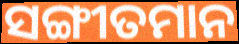
ସଙ୍ଗୀତମାନ